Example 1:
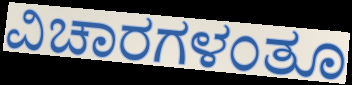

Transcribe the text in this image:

ವಿಚಾರಗಳಂತೂ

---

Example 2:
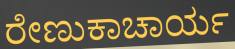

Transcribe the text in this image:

ರೇಣುಕಾಚಾರ್ಯ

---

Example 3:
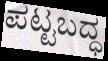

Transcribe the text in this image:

ಪಟ್ಟಬದ್ಧ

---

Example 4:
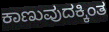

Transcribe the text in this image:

ಕಾಣುವುದಕ್ಕಿಂತ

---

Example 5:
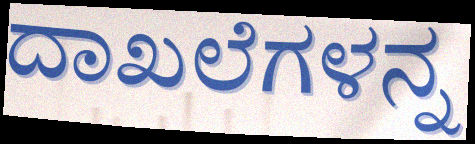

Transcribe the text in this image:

ದಾಖಲೆಗಳನ್ನ